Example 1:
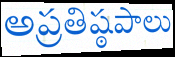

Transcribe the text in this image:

అప్రతిష్ఠపాలు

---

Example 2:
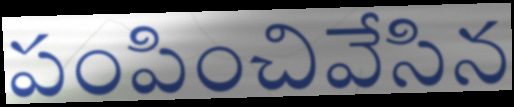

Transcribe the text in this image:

పంపించివేసిన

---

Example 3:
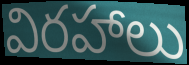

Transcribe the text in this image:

విరహాలు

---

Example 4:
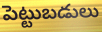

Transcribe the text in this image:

పెట్టుబడులు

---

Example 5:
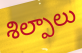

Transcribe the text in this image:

శిల్పాలు